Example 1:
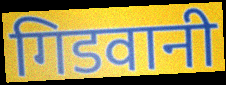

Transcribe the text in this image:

गिडवानी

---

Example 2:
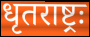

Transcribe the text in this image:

धृतराष्ट्रः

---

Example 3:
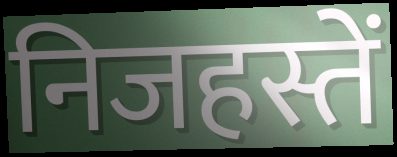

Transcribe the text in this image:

निजहस्तें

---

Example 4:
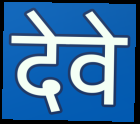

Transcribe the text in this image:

देवे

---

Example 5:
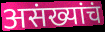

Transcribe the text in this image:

असंख्यांचं